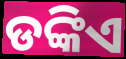
ଡଙ୍କିଏ